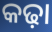
କଢ଼ା